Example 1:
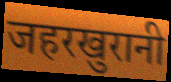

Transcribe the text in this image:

जहरखुरानी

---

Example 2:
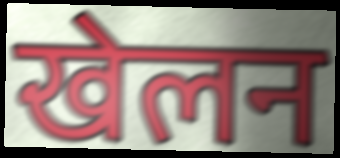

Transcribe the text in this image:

खेलन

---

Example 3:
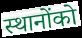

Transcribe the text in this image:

स्थानोंको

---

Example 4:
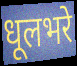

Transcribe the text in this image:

धूलभरे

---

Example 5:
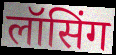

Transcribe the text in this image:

लॉसिंग